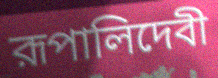
রূপালিদেবী